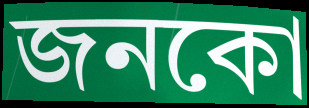
জনকো